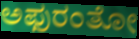
ಅಫುರಂತೋ